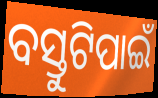
ବସ୍ତୁଟିପାଇଁ